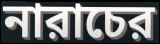
নারাচের